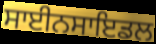
ਸਾਈਨਸਾਇਡਲ